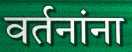
वर्तनांना